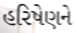
હરિષેણને